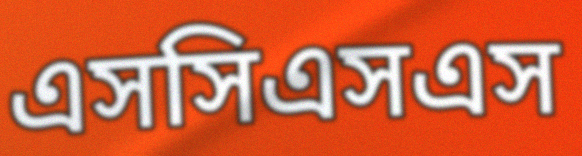
এসসিএসএস